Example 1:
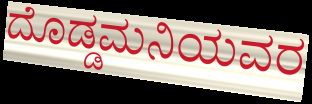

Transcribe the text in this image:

ದೊಡ್ಡಮನಿಯವರ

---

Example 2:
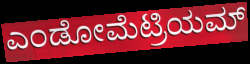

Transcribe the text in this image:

ಎಂಡೋಮೆಟ್ರಿಯಮ್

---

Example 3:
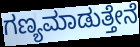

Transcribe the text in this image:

ಗಣ್ಯಮಾಡುತ್ತೇನೆ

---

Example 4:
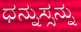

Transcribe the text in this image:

ಧನ್ನುಸ್ಸನ್ನು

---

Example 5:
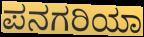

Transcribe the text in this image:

ಪನಗರಿಯಾ